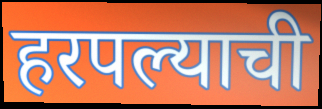
हरपल्याची